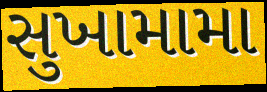
સુખામામા